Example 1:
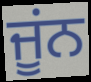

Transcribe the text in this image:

ਜੂਂਨ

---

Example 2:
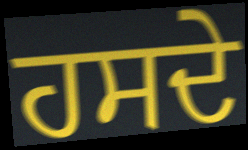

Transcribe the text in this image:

ਹਸਦੇ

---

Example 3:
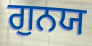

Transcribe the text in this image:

ਗੁਨਯ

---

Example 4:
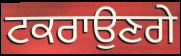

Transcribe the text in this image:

ਟਕਰਾਉਣਗੇ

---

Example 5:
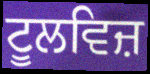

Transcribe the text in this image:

ਟੂਲਵਿਜ਼